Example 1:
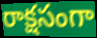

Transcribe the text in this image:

రాక్షసంగా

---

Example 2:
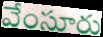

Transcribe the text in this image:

వేంసూరు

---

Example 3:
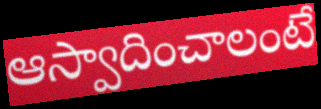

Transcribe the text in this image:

ఆస్వాదించాలంటే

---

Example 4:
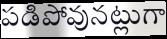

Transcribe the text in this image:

పడిపోవునట్లుగా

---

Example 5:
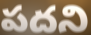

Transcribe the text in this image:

పదని